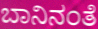
ಬಾನಿನಂತೆ